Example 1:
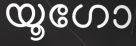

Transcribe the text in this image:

യൂഗോ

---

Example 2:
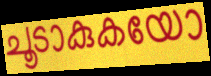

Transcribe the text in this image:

ചൂടാകുകയോ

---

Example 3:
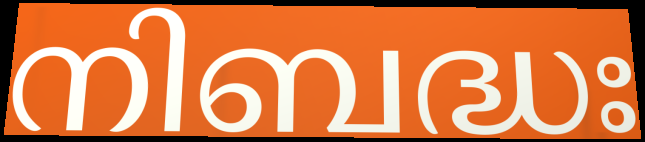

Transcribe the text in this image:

നിബദ്ധഃ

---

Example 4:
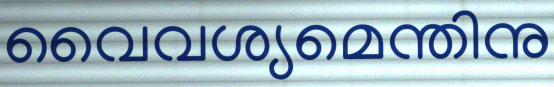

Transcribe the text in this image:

വൈവശ്യമെന്തിനു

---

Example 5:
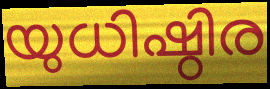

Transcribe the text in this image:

യുധിഷ്ഠിര